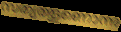
സത്യത്തൂണൊന്നു